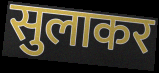
सुलाकर